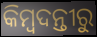
କିମ୍ବଦନ୍ତୀରୁ